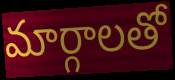
మార్గాలతో